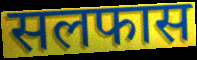
सलफास